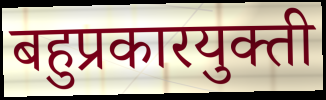
बहुप्रकारयुक्ती